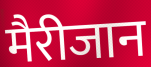
मैरीजान